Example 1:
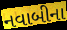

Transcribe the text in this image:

નવાબીના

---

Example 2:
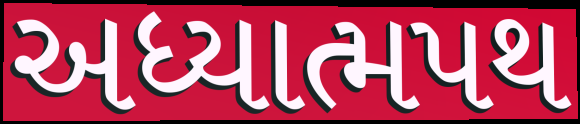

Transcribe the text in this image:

અધ્યાત્મપથ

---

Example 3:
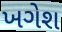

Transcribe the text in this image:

ખગેશ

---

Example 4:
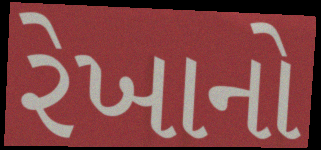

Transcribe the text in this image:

રેખાનો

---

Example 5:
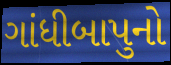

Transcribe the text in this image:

ગાંધીબાપુનો